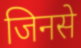
जिनसे